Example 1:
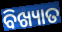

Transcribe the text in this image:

ବିଖ୍ୟାତ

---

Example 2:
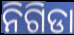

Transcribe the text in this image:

ନିଗିଡା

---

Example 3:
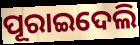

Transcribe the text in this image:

ପୂରାଇଦେଲି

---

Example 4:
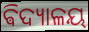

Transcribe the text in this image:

ଵିଦ୍ୟାଳୟ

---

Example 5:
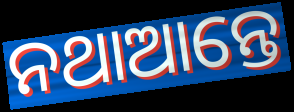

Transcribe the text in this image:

ନଥାଆନ୍ତେ